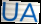
UA